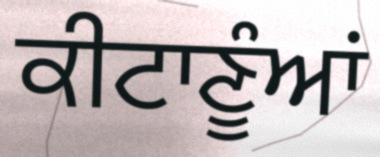
ਕੀਟਾਣੂੰਆਂ